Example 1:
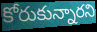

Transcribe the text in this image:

కోరుకున్నారని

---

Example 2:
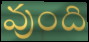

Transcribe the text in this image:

వుంది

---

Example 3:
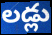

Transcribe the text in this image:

లడ్లు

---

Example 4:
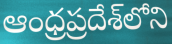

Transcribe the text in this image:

ఆంధ్రప్రదేశ్‌లోని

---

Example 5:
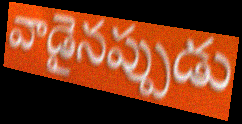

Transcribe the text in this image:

వాడైనప్పుడు